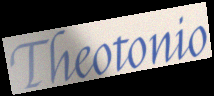
Theotonio